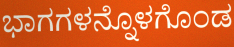
ಭಾಗಗಳನ್ನೊಳಗೊಂಡ